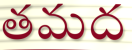
తమద